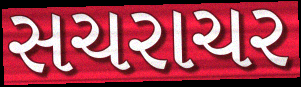
સચરાચર